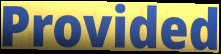
Provided